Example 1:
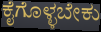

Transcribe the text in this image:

ಕೈಗೊಳ್ಳಬೇಕು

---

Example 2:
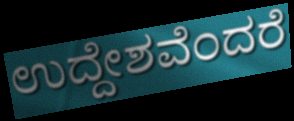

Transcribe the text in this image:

ಉದ್ದೇಶವೆಂದರೆ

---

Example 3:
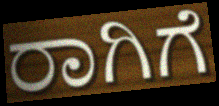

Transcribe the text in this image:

ರಾಗಿಗೆ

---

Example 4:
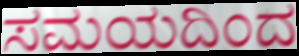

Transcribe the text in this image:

ಸಮಯದಿಂದ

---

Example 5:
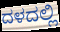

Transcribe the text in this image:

ದಳದಲ್ಲಿ